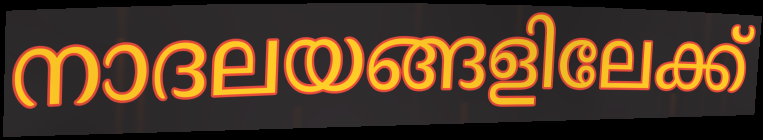
നാദലയങ്ങളിലേക്ക്